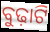
ବୁଢ଼ାଟି